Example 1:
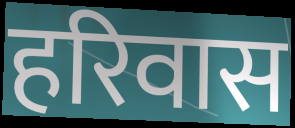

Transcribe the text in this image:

हरिवास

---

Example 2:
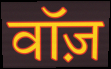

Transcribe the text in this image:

वॉज़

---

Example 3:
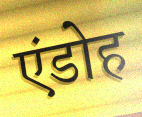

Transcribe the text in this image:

एंडोह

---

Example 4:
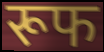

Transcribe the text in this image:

रूफ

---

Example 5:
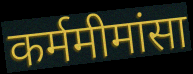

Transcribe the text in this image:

कर्ममीमांसा